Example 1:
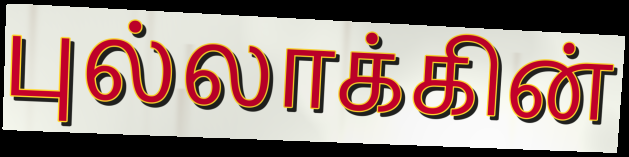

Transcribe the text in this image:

புல்லாக்கின்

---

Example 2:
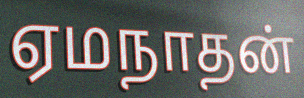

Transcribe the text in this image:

ஏமநாதன்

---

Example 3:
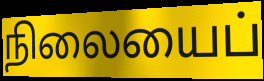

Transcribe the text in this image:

நிலையைப்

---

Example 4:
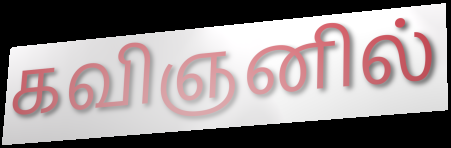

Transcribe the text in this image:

கவிஞனில்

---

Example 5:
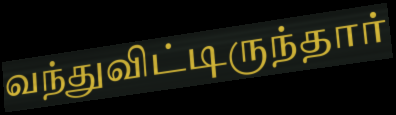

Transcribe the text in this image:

வந்துவிட்டிருந்தார்